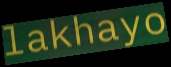
lakhayo